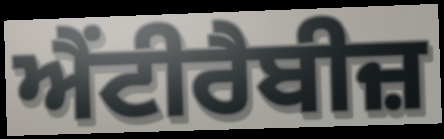
ਐਂਟੀਰੈਬੀਜ਼